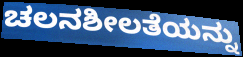
ಚಲನಶೀಲತೆಯನ್ನು